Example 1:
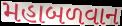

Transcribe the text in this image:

મહાબળવાન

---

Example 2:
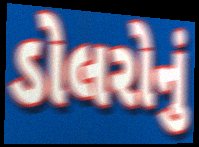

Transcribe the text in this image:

ડોલરોનું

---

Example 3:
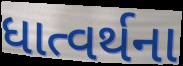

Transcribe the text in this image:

ધાત્વર્થના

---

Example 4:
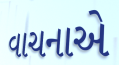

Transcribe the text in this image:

વાચનાએ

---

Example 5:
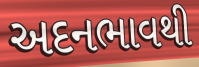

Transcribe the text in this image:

અદનભાવથી